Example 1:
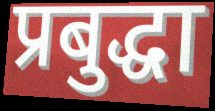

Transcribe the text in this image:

प्रबुद्धा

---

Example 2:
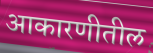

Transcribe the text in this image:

आकारणीतील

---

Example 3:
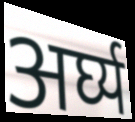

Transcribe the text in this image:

अर्घ्य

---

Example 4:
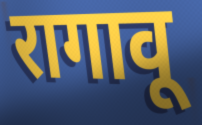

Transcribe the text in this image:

रागावू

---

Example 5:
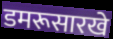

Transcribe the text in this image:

डमरूसारखे